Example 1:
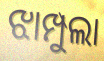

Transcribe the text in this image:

ଝାମ୍ପୁଲା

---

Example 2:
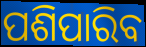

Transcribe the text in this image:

ପଶିପାରିବ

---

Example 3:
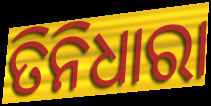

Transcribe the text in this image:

ତିନିଧାରା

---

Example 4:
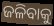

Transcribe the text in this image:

ଜଳିବାକୁ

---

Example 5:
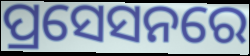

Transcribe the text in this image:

ପ୍ରସେସନରେ